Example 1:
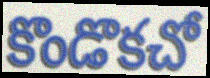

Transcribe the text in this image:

కొండొకచో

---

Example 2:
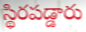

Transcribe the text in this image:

స్థిరపడ్డారు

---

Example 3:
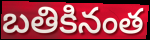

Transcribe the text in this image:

బతికినంత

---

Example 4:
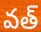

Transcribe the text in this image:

వత్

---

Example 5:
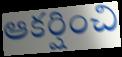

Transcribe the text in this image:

ఆకర్షించి